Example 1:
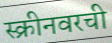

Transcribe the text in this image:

स्क्रीनवरची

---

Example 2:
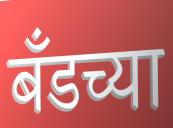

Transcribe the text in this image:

बँडच्या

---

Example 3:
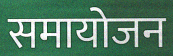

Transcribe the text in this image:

समायोजन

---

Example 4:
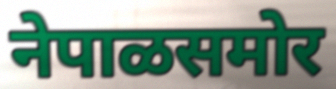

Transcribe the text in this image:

नेपाळसमोर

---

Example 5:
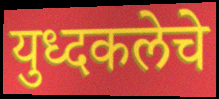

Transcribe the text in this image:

युध्दकलेचे